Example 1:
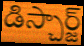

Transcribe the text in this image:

డిస్చార్జ్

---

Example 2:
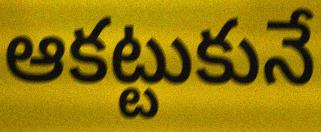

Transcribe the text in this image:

ఆకట్టుకునే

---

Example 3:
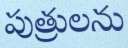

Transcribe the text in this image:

పుత్రులను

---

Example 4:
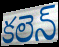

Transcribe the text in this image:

కలెన్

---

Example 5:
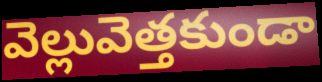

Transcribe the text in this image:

వెల్లువెత్తకుండా